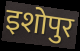
इशोपुर